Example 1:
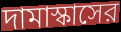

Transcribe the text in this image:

দামাস্কাসের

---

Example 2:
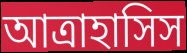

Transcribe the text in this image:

আত্রাহাসিস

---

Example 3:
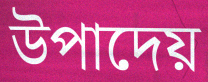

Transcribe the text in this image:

উপাদেয়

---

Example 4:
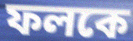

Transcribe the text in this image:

ফলকে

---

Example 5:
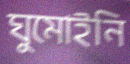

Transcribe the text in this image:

ঘুমোইনি